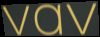
vav